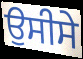
ਉਸੀਸੇ